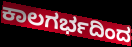
ಕಾಲಗರ್ಭದಿಂದ